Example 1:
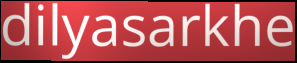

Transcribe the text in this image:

dilyasarkhe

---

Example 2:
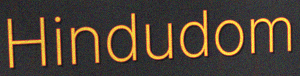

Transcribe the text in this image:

Hindudom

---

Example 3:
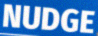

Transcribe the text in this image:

NUDGE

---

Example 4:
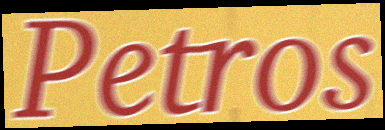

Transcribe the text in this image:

Petros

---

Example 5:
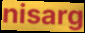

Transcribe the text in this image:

nisarg